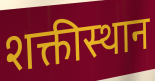
शक्तीस्थान